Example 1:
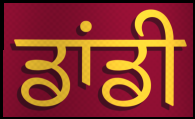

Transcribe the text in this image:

ਡਾਂਡੀ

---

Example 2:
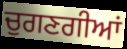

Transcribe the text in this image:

ਚੁਗਣਗੀਆਂ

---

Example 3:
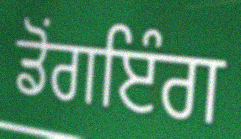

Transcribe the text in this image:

ਡੋਂਗਇੰਗ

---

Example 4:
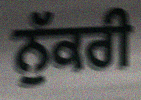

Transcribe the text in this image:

ਨੁੱਕਰੀ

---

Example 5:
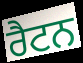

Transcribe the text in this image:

ਰੈਟਨ